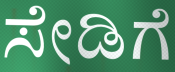
ಸೇಡಿಗೆ